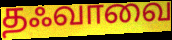
தஃவாவை